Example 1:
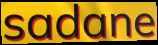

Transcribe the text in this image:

sadane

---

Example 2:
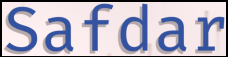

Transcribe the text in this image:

Safdar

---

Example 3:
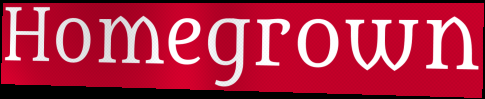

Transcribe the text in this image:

Homegrown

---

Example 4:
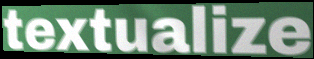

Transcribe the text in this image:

textualize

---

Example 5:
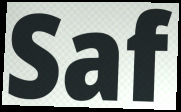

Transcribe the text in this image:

Saf